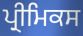
ਪ੍ਰੀਮਿਕਸ